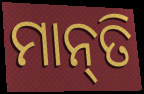
ମାନ୍‌ତି